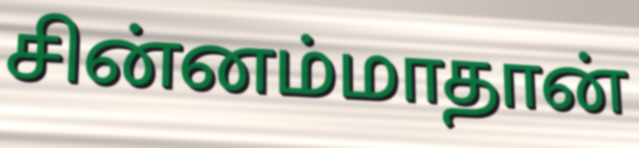
சின்னம்மாதான்